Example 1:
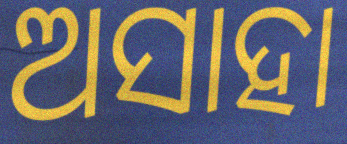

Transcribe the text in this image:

ଅସାହା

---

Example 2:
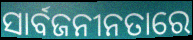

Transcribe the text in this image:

ସାର୍ବଜନୀନତାରେ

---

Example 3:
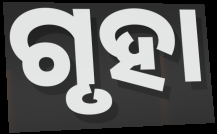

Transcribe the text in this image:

ଗୃହା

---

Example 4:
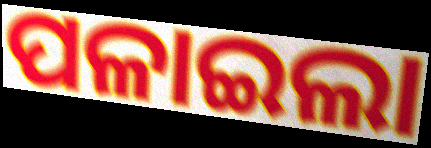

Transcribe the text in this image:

ପଳାଇଲା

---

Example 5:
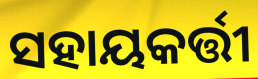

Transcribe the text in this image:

ସହାୟକର୍ତ୍ତୀ